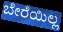
ಬೇರೆಯಿಲ್ಲ